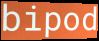
bipod